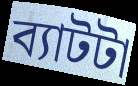
ব্যাটটা